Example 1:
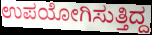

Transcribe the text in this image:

ಉಪಯೋಗಿಸುತ್ತಿದ್ದ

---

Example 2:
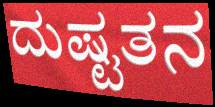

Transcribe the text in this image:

ದುಷ್ಟತನ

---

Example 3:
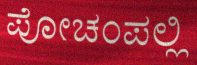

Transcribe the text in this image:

ಪೋಚಂಪಲ್ಲಿ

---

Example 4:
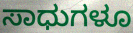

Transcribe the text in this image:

ಸಾಧುಗಳೂ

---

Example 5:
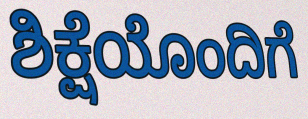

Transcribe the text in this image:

ಶಿಕ್ಷೆಯೊಂದಿಗೆ